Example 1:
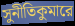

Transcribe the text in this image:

সুনীতিকুমারে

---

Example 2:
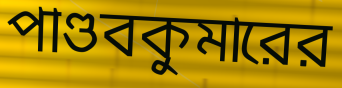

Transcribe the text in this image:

পাণ্ডবকুমারের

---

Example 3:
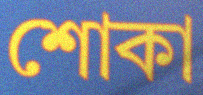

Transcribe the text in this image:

শোকা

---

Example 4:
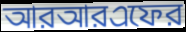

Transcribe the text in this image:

আরআরএফের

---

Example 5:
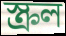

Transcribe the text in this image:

স্ক্রল